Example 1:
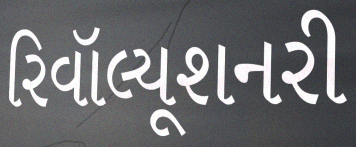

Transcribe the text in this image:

રિવૉલ્યૂશનરી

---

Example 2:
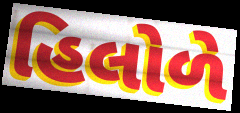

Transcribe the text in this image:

હિલોળે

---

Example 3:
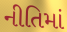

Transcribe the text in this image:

નીતિમાં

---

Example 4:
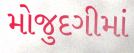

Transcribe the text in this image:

મોજુદગીમાં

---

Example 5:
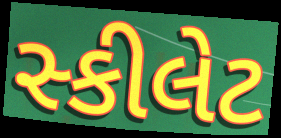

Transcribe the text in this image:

સ્કીલેટ